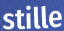
stille